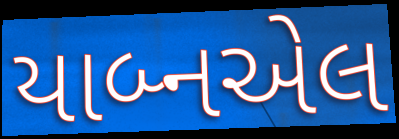
યાબ્નએલ